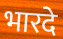
भारदे